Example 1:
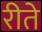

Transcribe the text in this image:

रीते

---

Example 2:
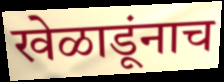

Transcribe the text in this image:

खेळाडूंनाच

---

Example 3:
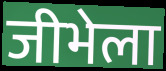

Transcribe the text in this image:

जीभेला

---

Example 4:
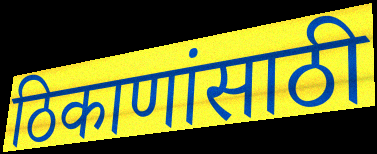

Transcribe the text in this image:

ठिकाणांसाठी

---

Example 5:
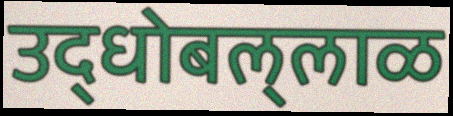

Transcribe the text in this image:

उद्धोबल्लाळ